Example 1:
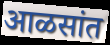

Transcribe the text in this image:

आळसांत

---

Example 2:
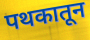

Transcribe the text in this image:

पथकातून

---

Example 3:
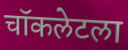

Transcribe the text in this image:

चॉकलेटला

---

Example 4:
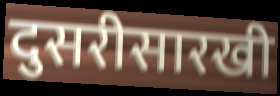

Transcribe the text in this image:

दुसरीसारखी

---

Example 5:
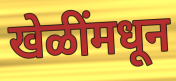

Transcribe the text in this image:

खेळींमधून